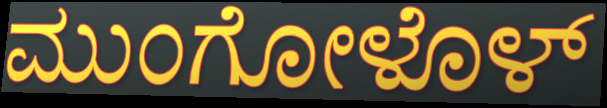
ಮುಂಗೋಳೊಳ್